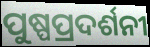
ପୁଷ୍ପପ୍ରଦର୍ଶନୀ